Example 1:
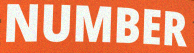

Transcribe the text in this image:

NUMBER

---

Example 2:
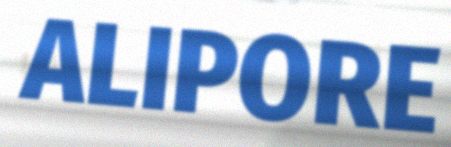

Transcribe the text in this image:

ALIPORE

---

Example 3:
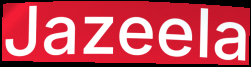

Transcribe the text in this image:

Jazeela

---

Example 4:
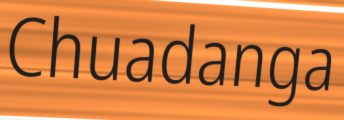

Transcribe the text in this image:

Chuadanga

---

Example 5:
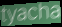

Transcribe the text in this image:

tyacha